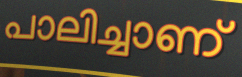
പാലിച്ചാണ്